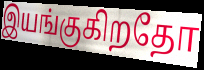
இயங்குகிறதோ